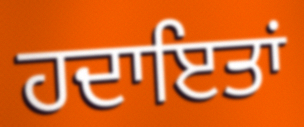
ਹਦਾਇਤਾਂ